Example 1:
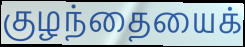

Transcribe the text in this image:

குழந்தையைக்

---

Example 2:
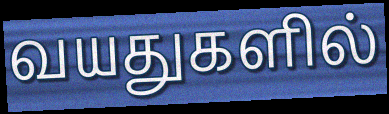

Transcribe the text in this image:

வயதுகளில்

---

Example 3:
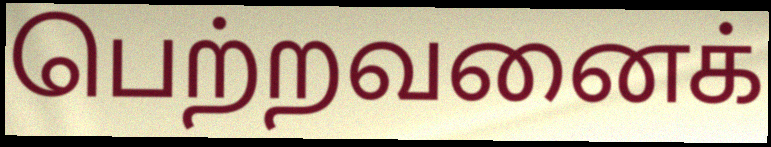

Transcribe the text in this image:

பெற்றவனைக்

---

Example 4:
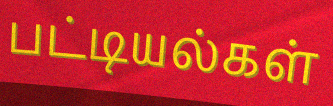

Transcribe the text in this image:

பட்டியல்கள்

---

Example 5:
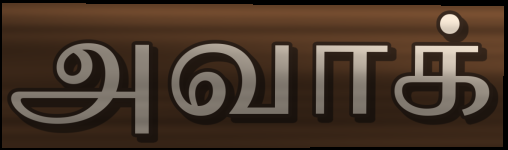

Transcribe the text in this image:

அவாக்